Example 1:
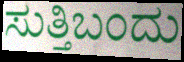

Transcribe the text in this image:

ಸುತ್ತಿಬಂದು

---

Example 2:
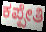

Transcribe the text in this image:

ಕಪ್ಪೇತಿ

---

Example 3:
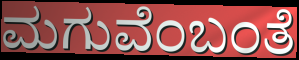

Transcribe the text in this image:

ಮಗುವೆಂಬಂತೆ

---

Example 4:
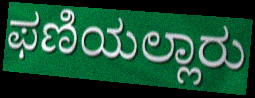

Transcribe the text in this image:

ಫಣಿಯಲ್ಲಾರು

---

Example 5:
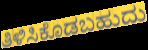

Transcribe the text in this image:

ತಿಳಿಸಿಕೊಡಬಹುದು